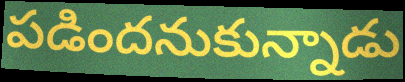
పడిందనుకున్నాడు